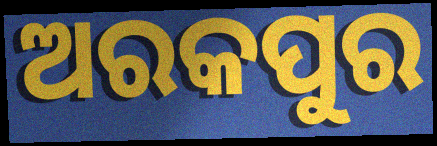
ଅରକପୁର